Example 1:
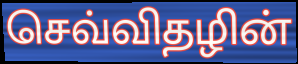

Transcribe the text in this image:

செவ்விதழின்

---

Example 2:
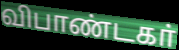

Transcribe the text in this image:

விபாண்டகர்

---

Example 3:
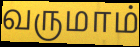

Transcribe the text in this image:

வருமாம்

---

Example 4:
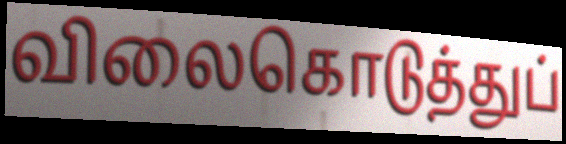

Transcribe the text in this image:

விலைகொடுத்துப்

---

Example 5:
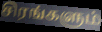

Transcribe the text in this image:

சிரங்களும்